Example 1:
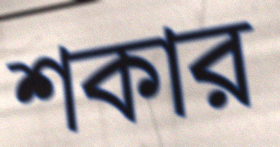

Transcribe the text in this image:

শকার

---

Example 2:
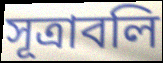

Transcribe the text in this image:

সূত্রাবলি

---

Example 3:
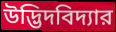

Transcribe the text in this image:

উদ্ভিদবিদ্যার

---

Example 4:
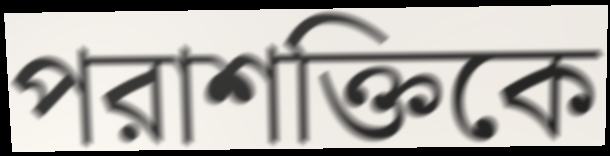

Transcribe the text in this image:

পরাশক্তিকে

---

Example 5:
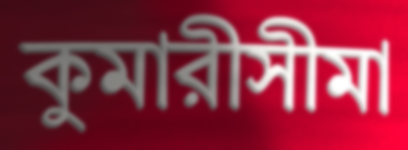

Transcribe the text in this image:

কুমারীসীমা